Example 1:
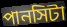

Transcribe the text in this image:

পানসিটা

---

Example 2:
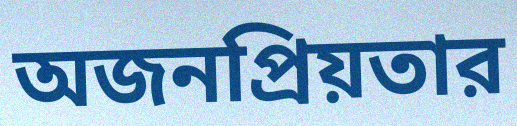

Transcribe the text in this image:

অজনপ্রিয়তার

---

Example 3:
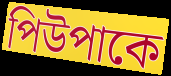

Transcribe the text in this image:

পিউপাকে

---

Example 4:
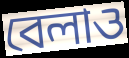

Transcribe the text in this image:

বেলাও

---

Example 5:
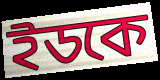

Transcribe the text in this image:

ইডকে